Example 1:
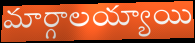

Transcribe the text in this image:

మార్గాలయ్యాయి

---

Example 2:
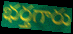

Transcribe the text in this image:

భర్తగారు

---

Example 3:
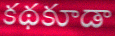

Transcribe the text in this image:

కథకూడా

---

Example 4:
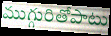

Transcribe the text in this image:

ముగ్గురితోపాటు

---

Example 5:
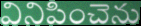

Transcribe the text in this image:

వినిపించెను